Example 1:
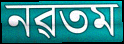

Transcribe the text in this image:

নৱতম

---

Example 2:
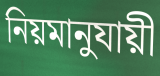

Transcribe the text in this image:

নিয়মানুযায়ী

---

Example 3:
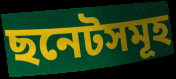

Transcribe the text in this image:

ছনেটসমূহ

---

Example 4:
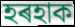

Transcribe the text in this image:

হৰহাক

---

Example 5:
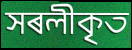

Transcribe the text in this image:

সৰলীকৃত